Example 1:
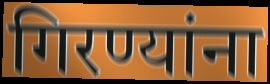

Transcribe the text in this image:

गिरण्यांना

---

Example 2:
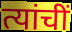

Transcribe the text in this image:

त्यांचीं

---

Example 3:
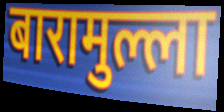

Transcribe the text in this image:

बारामुल्ला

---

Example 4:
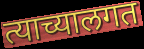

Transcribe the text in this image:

त्याच्यालगत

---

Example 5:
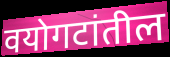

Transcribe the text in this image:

वयोगटांतील